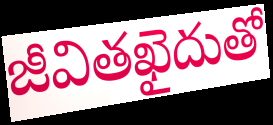
జీవితఖైదుతో